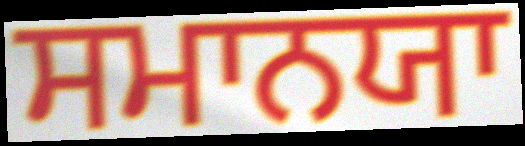
ਸਮਾਨਯਾ